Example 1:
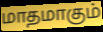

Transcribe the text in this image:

மாதமாகும்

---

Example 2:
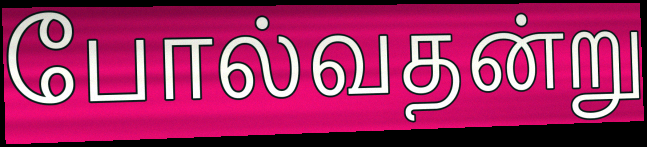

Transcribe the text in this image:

போல்வதன்று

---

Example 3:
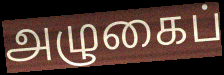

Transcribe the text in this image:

அழுகைப்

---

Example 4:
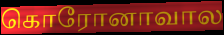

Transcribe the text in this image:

கொரோனாவால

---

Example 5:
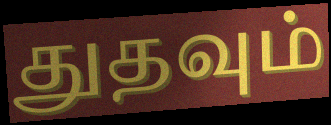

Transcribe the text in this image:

துதவும்